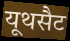
यूथसैट